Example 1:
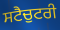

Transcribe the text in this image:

ਸਟੈਚੁਟਰੀ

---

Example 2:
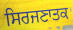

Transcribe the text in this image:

ਸਿਰਜਣਾਤਕ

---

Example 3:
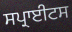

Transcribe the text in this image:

ਸਪ੍ਰਾਈਟਸ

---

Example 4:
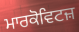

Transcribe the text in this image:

ਮਾਰਕੋਵਿਟਜ਼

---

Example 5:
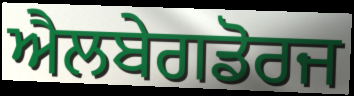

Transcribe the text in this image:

ਐਲਬੇਗਡੋਰਜ